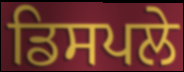
ਡਿਸਪਲੇ